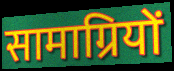
सामाग्रियों